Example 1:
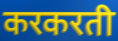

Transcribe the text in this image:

करकरती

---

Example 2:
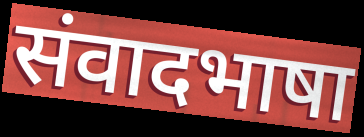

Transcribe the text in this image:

संवादभाषा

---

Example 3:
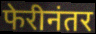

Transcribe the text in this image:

फेरीनंतर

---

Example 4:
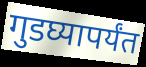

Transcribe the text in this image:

गुडघ्यापर्यंत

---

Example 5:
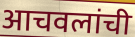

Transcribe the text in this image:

आचवलांची